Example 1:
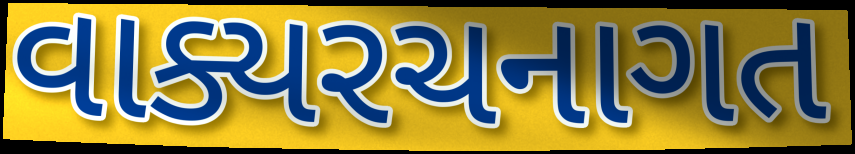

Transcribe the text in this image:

વાક્યરચનાગત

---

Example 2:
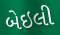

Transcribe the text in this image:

બેઇલી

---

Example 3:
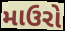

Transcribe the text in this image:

માઉરો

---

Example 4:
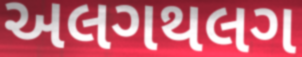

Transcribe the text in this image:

અલગથલગ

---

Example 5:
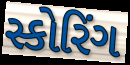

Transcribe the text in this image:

સ્કોરિંગ